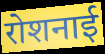
रोशनाई